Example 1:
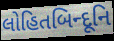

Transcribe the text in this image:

લોહિતબિન્દૂનિ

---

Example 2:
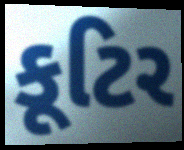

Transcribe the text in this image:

કૂટિર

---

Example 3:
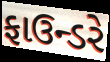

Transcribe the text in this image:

ફાઉન્ડરે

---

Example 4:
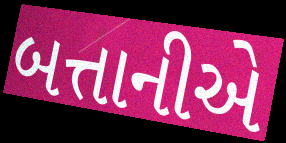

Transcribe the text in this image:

બત્તાનીએ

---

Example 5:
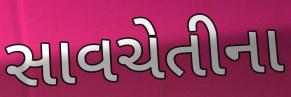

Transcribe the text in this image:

સાવચેતીના